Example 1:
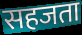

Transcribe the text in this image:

सहजता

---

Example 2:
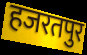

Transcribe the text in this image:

हजरतपुर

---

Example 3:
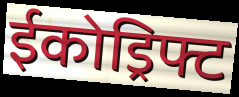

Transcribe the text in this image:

ईकोड्रिफ्ट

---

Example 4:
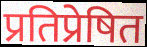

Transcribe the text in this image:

प्रतिप्रेषित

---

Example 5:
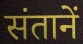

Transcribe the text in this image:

संतानें